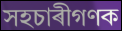
সহচাৰীগণক